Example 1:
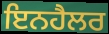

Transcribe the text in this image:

ਇਨਹੈਲਰ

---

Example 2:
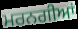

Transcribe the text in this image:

ਮਰਨਗੀਆਂ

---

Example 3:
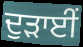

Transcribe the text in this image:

ਦੁੜਾਈਂ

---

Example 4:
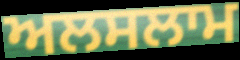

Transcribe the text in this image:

ਅਲਸਲਾਮ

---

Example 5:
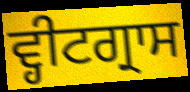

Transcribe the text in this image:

ਵ੍ਹੀਟਗ੍ਰਾਸ